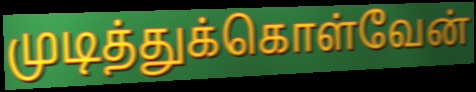
முடித்துக்கொள்வேன்